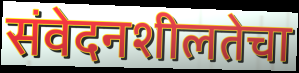
संवेदनशीलतेचा